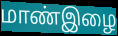
மாண்இழை